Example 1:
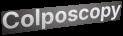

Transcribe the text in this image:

Colposcopy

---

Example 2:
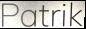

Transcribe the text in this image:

Patrik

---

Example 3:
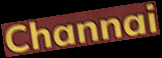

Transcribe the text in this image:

Channai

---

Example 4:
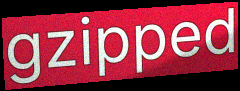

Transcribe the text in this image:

gzipped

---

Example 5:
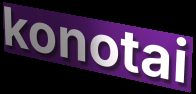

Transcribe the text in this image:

konotai